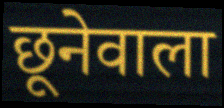
छूनेवाला